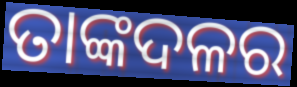
ତାଙ୍କଦଳର